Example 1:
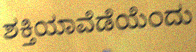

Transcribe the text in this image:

ಶಕ್ತಿಯಾವೆಡೆಯೆಂದು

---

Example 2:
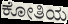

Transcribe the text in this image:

ಕೋತಿಯ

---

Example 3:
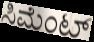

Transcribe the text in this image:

ಸಿಮೆಂಟ್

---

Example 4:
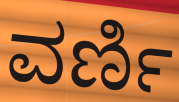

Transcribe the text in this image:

ವರ್ಣಿ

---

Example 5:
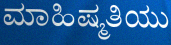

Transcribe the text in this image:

ಮಾಹಿಷ್ಮತಿಯು